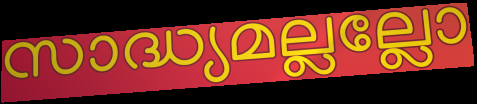
സാദ്ധ്യമല്ലല്ലോ